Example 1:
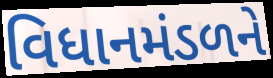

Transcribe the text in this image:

વિધાનમંડળને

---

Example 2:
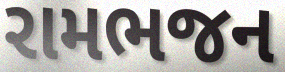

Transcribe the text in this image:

રામભજન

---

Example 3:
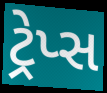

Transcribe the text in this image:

ટ્રેપ્સ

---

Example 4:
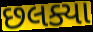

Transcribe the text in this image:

છલક્યા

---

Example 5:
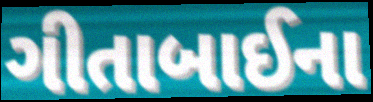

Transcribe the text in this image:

ગીતાબાઈના